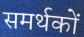
समर्थकों